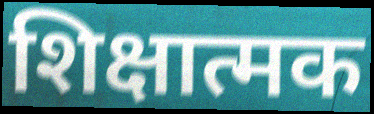
शिक्षात्मक